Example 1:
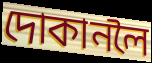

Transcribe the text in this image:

দোকানলৈ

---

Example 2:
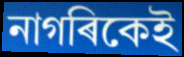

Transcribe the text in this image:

নাগৰিকেই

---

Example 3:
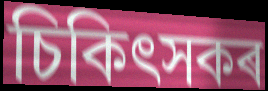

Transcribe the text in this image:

চিকিৎসকৰ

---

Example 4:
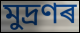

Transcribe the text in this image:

মুদ্ৰণৰ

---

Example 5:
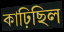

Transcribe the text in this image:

কাঢ়িছিল